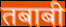
तबाबी